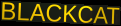
BLACKCAT